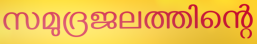
സമുദ്രജലത്തിന്റെ